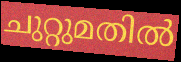
ചുറ്റുമതിൽ